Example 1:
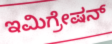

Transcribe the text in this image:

ಇಮಿಗ್ರೇಷನ್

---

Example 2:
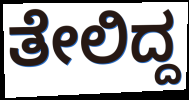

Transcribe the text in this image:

ತೇಲಿದ್ದ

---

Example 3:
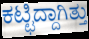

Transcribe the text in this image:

ಕಟ್ಟಿದ್ದಾಗಿತ್ತು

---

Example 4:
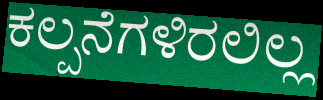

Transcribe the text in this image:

ಕಲ್ಪನೆಗಳಿರಲಿಲ್ಲ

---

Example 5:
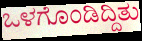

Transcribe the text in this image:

ಒಳಗೊಂಡಿದ್ದಿತು